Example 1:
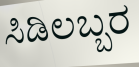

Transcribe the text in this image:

ಸಿಡಿಲಬ್ಬರ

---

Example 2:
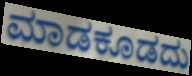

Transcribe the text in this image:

ಮಾಡಕೂಡದು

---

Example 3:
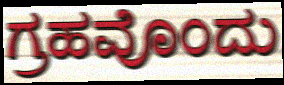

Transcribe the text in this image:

ಗ್ರಹವೊಂದು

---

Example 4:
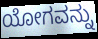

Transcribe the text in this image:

ಯೋಗವನ್ನು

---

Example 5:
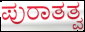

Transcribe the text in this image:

ಪುರಾತತ್ವ